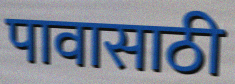
पावासाठी